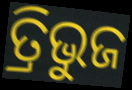
ତ୍ରିଭୁଜ